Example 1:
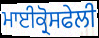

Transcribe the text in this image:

ਮਾਈਕ੍ਰੋਸਫੇਲੀ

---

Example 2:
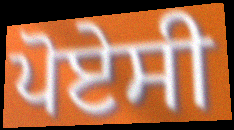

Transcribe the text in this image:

ਪੋਏਸੀ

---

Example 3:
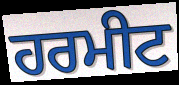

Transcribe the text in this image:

ਹਰਮੀਟ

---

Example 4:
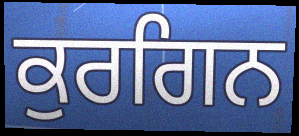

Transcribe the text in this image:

ਕੁਰਗਿਨ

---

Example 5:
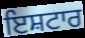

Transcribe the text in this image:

ਇਸ਼ਟਾਰ